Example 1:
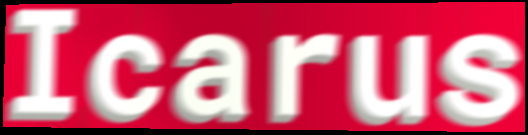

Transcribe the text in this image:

Icarus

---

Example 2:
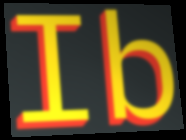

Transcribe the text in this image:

Ib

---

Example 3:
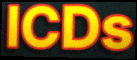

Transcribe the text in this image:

ICDs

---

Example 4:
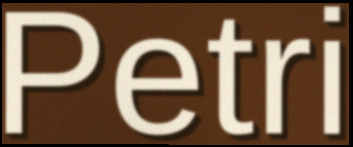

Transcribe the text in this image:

Petri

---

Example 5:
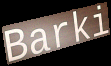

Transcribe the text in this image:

Barki